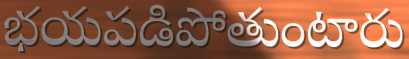
భయపడిపోతుంటారు